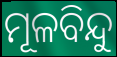
ମୂଳବିନ୍ଦୁ